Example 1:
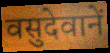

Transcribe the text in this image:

वसुदेवानें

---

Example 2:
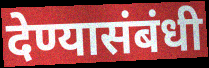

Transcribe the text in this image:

देण्यासंबंधी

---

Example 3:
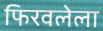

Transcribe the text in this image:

फिरवलेला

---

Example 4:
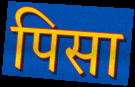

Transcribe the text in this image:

पिसा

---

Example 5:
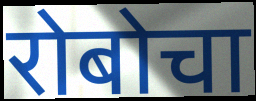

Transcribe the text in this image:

रोबोचा